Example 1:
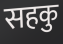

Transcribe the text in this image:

सहकु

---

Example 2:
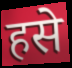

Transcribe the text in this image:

हसे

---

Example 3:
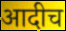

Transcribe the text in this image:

आदीच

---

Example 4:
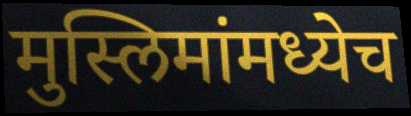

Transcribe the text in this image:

मुस्लिमांमध्येच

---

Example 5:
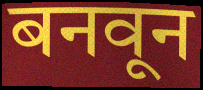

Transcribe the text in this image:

बनवून